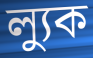
ল্যুক